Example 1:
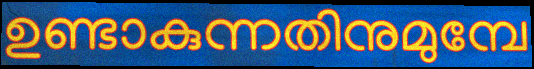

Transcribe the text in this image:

ഉണ്ടാകുന്നതിനുമുമ്പേ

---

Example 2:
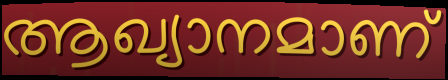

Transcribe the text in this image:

ആഖ്യാനമാണ്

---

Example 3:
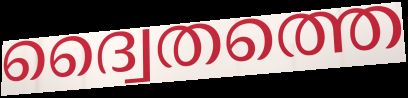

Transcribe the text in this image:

ദ്വൈതത്തെ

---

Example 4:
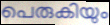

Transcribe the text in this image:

പെരുകിയും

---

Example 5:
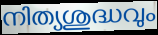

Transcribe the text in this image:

നിത്യശുദ്ധവും